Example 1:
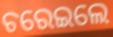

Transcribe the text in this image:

ଚରେଇଲେ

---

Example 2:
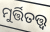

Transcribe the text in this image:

ମୁର୍ତ୍ତିତତ୍ତ୍ବ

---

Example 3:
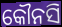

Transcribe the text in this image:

କୌନସି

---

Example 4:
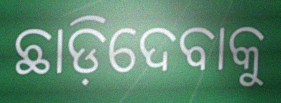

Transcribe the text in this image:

ଛାଡ଼ିଦେବାକୁ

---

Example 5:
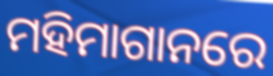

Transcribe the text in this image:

ମହିମାଗାନରେ